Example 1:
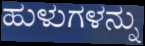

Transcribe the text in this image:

ಹುಳುಗಳನ್ನು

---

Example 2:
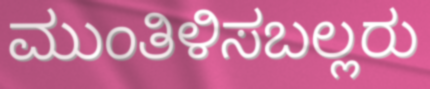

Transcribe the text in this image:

ಮುಂತಿಳಿಸಬಲ್ಲರು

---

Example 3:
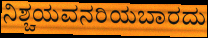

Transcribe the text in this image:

ನಿಶ್ಚಯವನರಿಯಬಾರದು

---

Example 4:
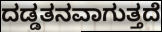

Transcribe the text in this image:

ದಡ್ಡತನವಾಗುತ್ತದೆ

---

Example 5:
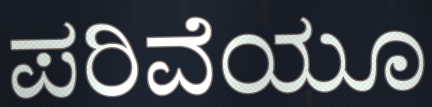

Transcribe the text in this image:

ಪರಿವೆಯೂ